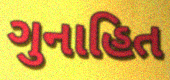
ગુનાહિત